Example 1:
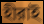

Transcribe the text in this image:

হীরাই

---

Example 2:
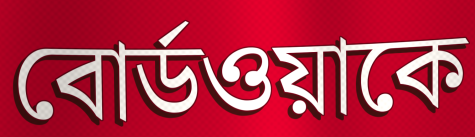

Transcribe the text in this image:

বোর্ডওয়াকে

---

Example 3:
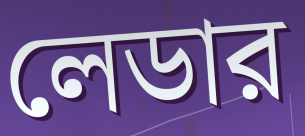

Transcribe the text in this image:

লেডার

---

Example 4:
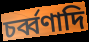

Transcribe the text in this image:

চর্ব্বণাদি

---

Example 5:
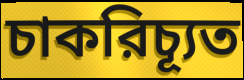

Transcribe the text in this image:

চাকরিচ্যূত